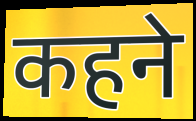
कहने